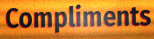
Compliments